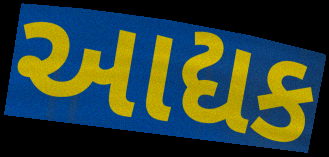
આદ્યક